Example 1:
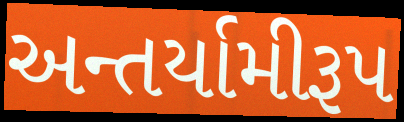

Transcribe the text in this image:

અન્તર્યામીરૂપ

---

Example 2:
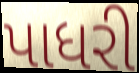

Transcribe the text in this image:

પાધરી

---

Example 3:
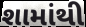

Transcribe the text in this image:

શામાંથી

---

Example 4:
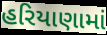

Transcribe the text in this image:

હરિયાણામાં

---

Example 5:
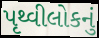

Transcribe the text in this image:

પૃથ્વીલોકનું